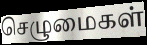
செழுமைகள்